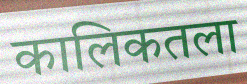
कालिकतला